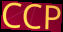
CCP